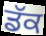
ਡੱਕ